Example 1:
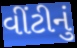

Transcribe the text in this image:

વીંટીનું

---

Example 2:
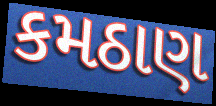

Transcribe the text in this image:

કમઠાણ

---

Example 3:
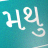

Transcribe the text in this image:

મથુ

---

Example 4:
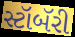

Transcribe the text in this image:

સ્ટૉબૅરી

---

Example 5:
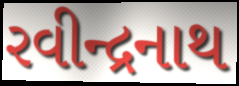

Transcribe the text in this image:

રવીન્દ્રનાથ